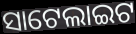
ସାଟେଲାଇଟ